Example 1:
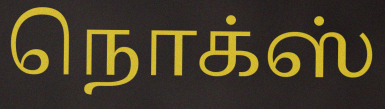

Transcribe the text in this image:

நொக்ஸ்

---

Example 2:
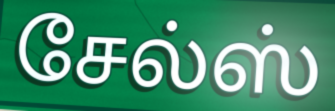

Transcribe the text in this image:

சேல்ஸ்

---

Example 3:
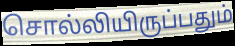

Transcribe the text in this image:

சொல்லியிருப்பதும்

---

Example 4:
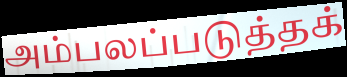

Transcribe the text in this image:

அம்பலப்படுத்தக்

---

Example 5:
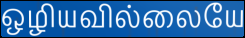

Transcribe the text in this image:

ஒழியவில்லையே